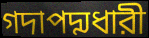
গদাপদ্মধারী